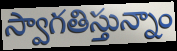
స్వాగతిస్తున్నాం